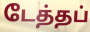
டேத்தப்